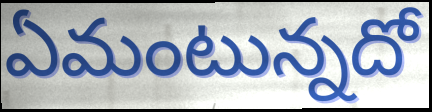
ఏమంటున్నదో